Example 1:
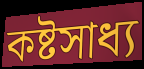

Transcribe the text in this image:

কষ্টসাধ্য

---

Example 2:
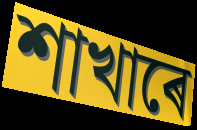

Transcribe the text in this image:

শাখাৰে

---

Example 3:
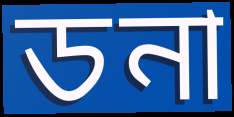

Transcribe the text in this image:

ডনা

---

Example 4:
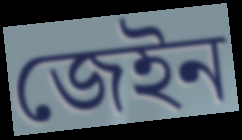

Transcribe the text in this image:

জেইন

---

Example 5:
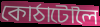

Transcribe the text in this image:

কোঠাটোলৈ